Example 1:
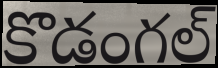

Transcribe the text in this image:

కొడంగల్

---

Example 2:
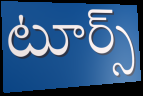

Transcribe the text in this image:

టూర్స్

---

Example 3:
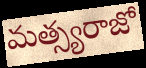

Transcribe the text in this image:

మత్స్యరాజో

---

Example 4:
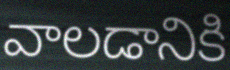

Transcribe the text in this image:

వాలడానికి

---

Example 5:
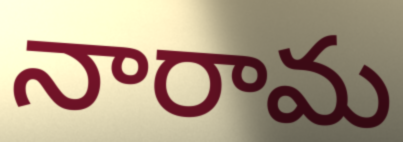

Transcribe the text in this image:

నారామ